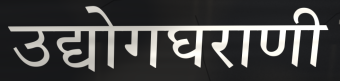
उद्योगघराणी